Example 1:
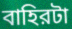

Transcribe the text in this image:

বাহিরটা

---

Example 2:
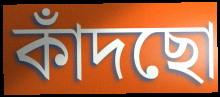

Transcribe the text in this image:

কাঁদছো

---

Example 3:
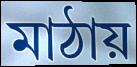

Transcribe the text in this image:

মাঠায়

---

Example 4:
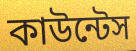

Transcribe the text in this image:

কাউন্টেস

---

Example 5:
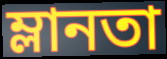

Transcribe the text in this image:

ম্লানতা